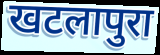
खटलापुरा